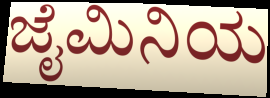
ಜೈಮಿನಿಯ